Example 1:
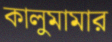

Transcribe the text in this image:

কালুমামার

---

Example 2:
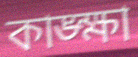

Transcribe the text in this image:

কাঙ্ক্ষা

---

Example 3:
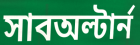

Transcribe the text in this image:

সাবঅল্টার্ন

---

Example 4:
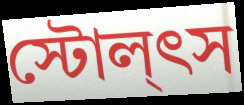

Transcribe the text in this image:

স্টোল্ৎস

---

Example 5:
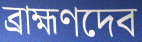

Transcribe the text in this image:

ব্রাহ্মণদেব